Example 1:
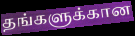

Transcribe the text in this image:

தங்களுக்கான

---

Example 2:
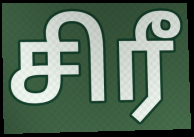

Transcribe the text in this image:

சிரீ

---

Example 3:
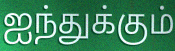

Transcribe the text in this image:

ஐந்துக்கும்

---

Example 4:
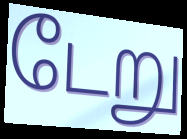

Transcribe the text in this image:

டேறு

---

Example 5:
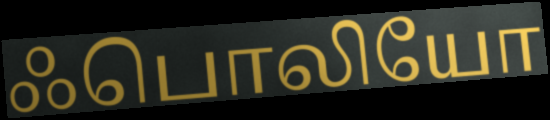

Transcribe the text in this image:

ஃபொலியோ